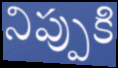
నిప్పుకి